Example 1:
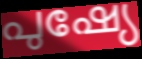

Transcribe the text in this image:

പുഷ്യേ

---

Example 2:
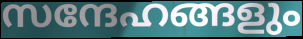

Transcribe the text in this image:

സന്ദേഹങ്ങളും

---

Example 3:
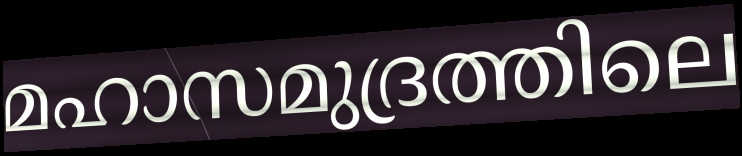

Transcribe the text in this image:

മഹാസമുദ്രത്തിലെ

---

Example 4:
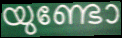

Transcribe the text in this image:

യുണ്ടോ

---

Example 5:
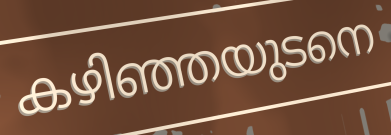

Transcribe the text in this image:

കഴിഞ്ഞയുടനെ